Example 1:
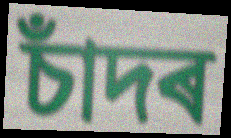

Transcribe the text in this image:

চাঁদৰ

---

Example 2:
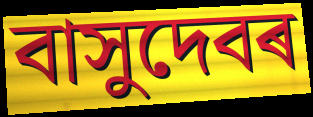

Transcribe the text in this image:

বাসুদেবৰ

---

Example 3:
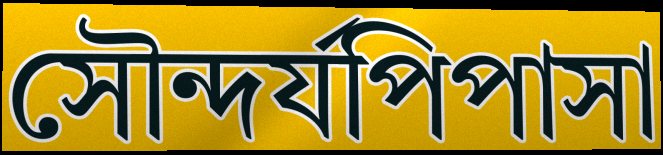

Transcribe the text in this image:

সৌন্দৰ্যপিপাসা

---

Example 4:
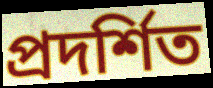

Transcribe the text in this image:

প্ৰদৰ্শিত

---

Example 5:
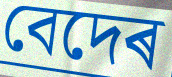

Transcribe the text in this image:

বেদেৰ